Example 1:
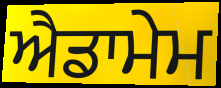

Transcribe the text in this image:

ਐਡਾਮੇਮ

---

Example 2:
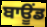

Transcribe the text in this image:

ਬਾਊਂਡ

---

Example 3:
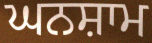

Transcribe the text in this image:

ਘਨਸ਼ਾਮ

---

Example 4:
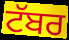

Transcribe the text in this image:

ਟੱਬਰ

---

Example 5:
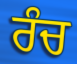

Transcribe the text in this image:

ਰੰਚ